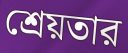
শ্রেয়তার